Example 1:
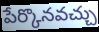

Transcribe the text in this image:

పేర్కొనవచ్చు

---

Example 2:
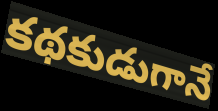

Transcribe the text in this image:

కథకుడుగానే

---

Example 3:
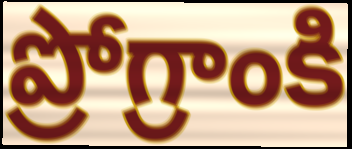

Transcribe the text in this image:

ప్రోగ్రాంకి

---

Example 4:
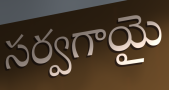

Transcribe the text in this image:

సర్వగాయై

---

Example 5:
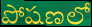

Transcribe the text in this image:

పోషణలో